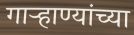
गाऱ्हाण्यांच्या